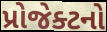
પ્રોજેક્ટનો